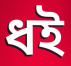
ধই